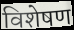
विशेषण